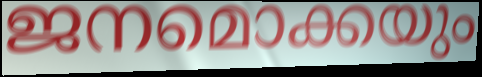
ജനമൊക്കയും